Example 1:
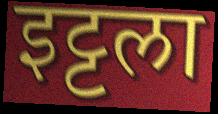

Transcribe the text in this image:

इट्टला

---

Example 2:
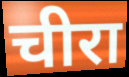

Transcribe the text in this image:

चीरा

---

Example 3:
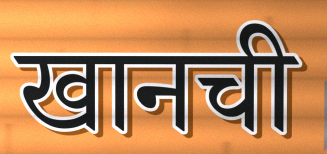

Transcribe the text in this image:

खानची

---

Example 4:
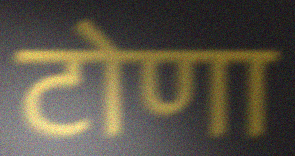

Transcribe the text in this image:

टोणा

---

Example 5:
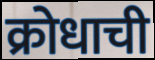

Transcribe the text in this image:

क्रोधाची